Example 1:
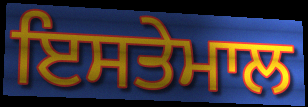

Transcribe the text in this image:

ਇਸਤੇਮਾਲ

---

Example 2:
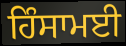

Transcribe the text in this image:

ਹਿੰਸਾਮਈ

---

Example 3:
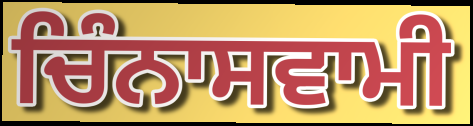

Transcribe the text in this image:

ਚਿੰਨਾਸਵਾਮੀ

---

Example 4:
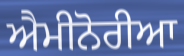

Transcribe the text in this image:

ਐਮੀਨੋਰੀਆ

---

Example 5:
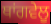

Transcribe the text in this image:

ਥਾਂਗਵੇਲੂ